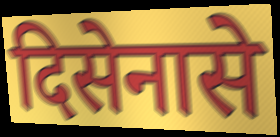
दिसेनासे